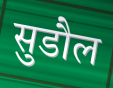
सुडौल